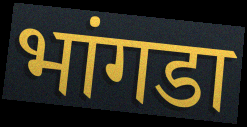
भांगडा